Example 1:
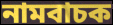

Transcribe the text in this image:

নামবাচক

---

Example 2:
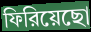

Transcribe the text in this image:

ফিরিয়েছো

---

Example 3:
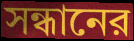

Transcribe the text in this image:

সন্ধানের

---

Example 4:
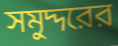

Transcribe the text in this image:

সমুদ্দরের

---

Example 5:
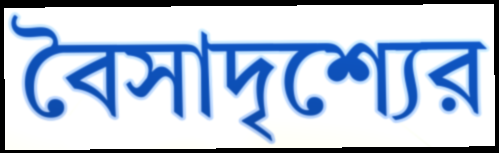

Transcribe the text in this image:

বৈসাদৃশ্যের